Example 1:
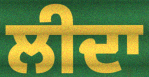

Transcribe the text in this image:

ਲੀਦਾ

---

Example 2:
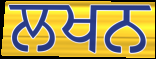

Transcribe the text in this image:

ਲਖਨ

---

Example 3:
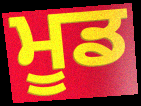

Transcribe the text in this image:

ਮੂਡ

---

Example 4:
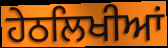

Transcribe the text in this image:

ਹੇਠਲਿਖੀਆਂ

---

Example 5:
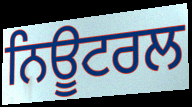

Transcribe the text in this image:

ਨਿਊਟਰਲ